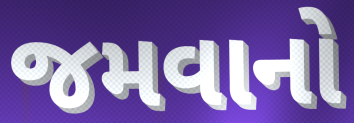
જમવાનો